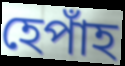
হেপাঁহ